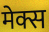
मेक्स